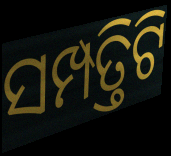
ସମ୍ପତ୍ତିଟି